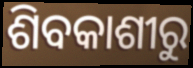
ଶିବକାଶୀରୁ